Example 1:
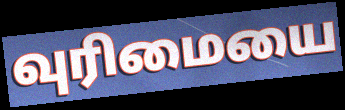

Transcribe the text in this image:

வுரிமையை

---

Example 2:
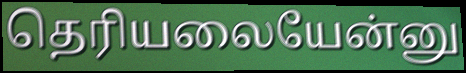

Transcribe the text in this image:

தெரியலையேன்னு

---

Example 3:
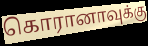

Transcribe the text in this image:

கொரானாவுக்கு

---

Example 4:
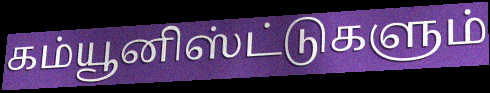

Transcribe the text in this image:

கம்யூனிஸ்ட்டுகளும்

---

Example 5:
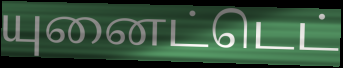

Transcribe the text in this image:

யுனைட்டெட்